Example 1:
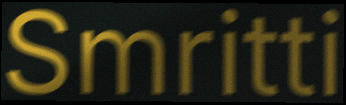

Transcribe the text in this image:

Smritti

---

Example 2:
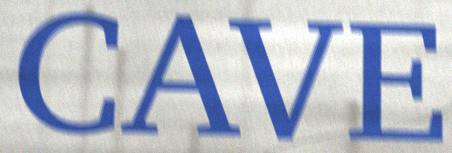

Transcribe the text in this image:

CAVE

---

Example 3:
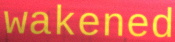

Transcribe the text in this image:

wakened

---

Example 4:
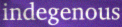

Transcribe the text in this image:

indegenous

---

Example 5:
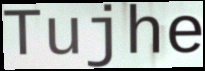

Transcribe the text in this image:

Tujhe